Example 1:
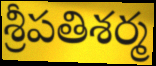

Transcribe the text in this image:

శ్రీపతిశర్మ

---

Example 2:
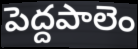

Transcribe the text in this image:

పెద్దపాలెం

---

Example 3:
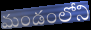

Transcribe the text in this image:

మండంలోని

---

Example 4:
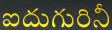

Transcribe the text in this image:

ఐదుగురినీ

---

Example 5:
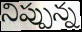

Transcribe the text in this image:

నిప్పున్న